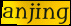
anjing